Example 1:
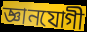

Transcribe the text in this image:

জ্ঞানযোগী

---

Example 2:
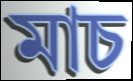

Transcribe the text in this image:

মাচ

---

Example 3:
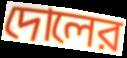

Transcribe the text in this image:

দোলের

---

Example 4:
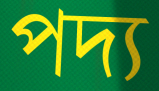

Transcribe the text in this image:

পদ্য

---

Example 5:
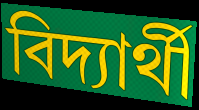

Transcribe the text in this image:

বিদ্যার্থী